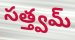
సత్త్వమ్